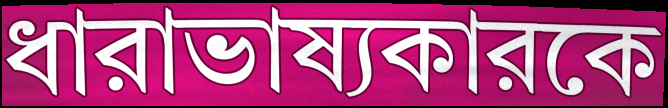
ধারাভাষ্যকারকে